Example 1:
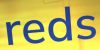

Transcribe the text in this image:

reds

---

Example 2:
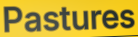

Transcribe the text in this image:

Pastures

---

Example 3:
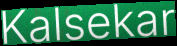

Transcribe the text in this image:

Kalsekar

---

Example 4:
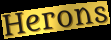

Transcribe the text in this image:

Herons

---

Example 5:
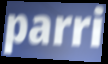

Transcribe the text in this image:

parri